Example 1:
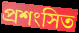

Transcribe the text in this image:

প্ৰশংসিত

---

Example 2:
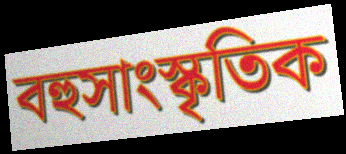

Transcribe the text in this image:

বহুসাংস্কৃতিক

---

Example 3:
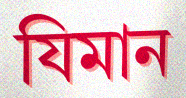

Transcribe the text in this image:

যিমান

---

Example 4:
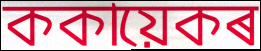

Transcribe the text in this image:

ককায়েকৰ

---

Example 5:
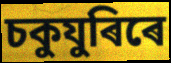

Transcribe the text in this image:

চকুযুৰিৰে